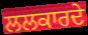
ਲਲਕਾਰਦੇ